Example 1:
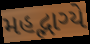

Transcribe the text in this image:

મહદ્ભાગ્યે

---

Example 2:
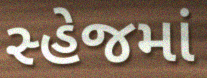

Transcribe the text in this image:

સ્હેજમાં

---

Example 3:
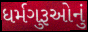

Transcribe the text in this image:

ધર્મગુરૂઓનું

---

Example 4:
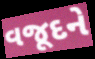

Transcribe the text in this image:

વજૂદને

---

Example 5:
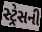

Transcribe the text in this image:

સ્ટ્રેસની